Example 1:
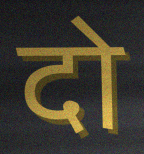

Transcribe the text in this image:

दो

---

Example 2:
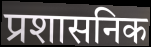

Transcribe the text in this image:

प्रशासनिक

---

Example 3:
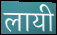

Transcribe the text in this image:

लायी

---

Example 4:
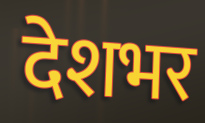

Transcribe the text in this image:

देशभर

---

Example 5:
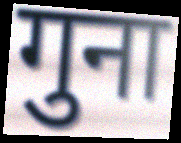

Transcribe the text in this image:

गुना